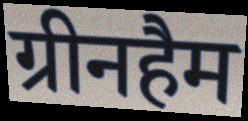
ग्रीनहैम